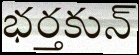
భర్తకున్